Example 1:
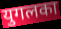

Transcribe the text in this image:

युगलका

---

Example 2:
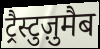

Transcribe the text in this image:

ट्रैस्टुज़ुमैब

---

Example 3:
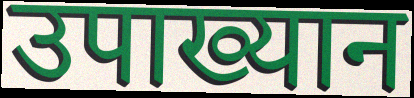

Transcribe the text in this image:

उपाख्यान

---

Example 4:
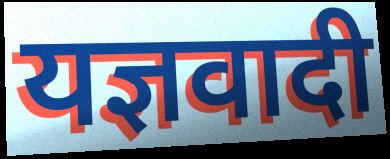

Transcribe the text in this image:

यज्ञवादी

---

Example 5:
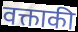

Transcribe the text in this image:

वक्ताकी